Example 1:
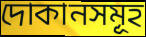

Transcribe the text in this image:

দোকানসমূহ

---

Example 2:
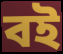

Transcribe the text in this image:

বই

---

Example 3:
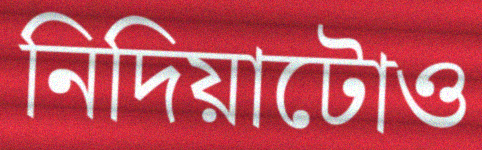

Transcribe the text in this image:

নিদিয়াটোও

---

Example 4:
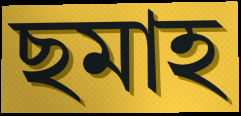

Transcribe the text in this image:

ছমাহ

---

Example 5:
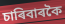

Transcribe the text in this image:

চাৰিবাৰকৈ